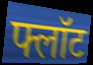
फ्लॉट